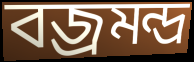
বজ্রমন্দ্র